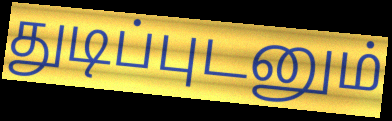
துடிப்புடனும்